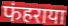
फंहराया